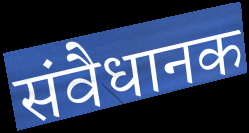
संवैधानक